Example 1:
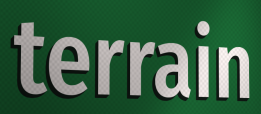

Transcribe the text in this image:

terrain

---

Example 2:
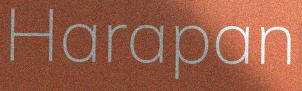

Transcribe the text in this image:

Harapan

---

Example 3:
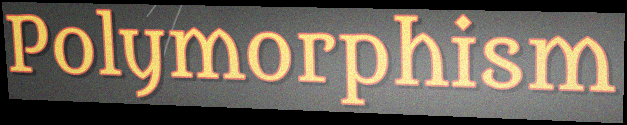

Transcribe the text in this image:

Polymorphism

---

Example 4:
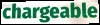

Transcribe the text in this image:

chargeable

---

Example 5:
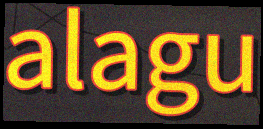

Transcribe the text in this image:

alagu